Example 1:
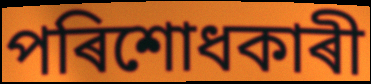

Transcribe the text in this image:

পৰিশোধকাৰী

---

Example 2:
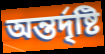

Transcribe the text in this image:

অন্তৰ্দৃষ্টি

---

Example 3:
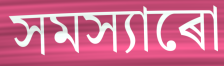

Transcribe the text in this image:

সমস্যাৰো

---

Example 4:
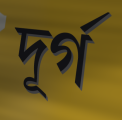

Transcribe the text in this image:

দূৰ্গ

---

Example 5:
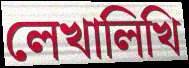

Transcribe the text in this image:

লেখালিখি